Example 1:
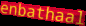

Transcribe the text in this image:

enbathaal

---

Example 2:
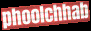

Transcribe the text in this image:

phoolchhab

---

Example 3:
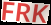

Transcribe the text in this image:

FRK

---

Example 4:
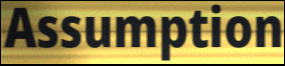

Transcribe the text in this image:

Assumption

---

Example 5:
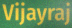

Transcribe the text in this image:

Vijayraj